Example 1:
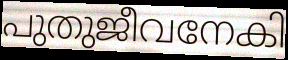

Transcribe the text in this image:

പുതുജീവനേകി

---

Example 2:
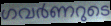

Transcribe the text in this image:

ഗവർണറുടെ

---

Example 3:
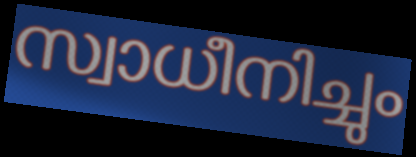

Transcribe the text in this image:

സ്വാധീനിച്ചും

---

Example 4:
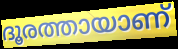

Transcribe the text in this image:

ദൂരത്തായാണ്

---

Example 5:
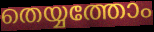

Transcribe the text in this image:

തെയ്യത്തോം